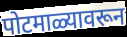
पोटमाळ्यावरून